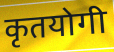
कृतयोगी